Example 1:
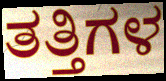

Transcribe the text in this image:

ತತ್ತಿಗಳ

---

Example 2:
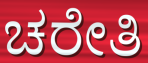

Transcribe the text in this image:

ಚರೇತಿ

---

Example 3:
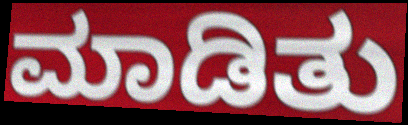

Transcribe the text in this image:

ಮಾಡಿತು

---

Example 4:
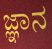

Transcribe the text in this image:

ಜ್ಞಾನ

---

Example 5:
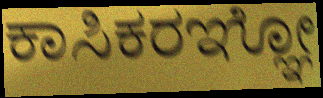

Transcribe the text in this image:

ಕಾಸಿಕರಞ್ಞೋ